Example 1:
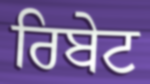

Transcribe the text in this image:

ਰਿਬੇਟ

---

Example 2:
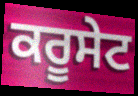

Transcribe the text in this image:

ਕਰੂਸੇਟ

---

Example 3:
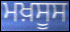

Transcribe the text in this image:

ਮਖ਼ਸੂਸ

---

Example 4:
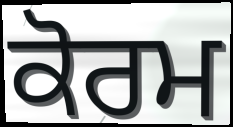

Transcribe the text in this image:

ਕੋਰਮ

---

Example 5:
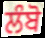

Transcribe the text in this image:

ਲੰਬੋ